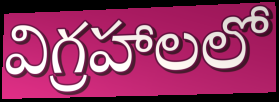
విగ్రహాలలో